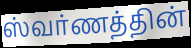
ஸ்வர்ணத்தின்